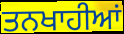
ਤਨਖਾਹੀਆਂ